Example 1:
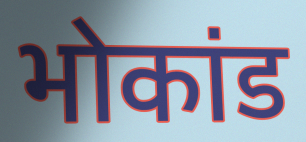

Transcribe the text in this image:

भोकांड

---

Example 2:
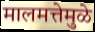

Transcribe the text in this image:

मालमत्तेमुळे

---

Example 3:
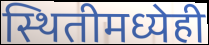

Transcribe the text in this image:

स्थितीमध्येही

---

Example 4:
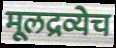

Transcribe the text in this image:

मूलद्रव्येच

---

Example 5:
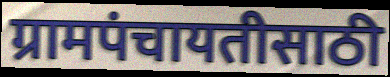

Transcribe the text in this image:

ग्रामपंचायतीसाठी